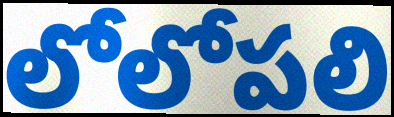
లోలోపలి